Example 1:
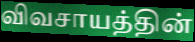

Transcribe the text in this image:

விவசாயத்தின்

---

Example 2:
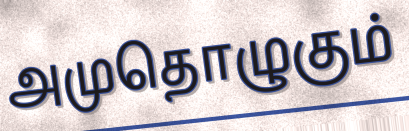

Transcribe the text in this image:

அமுதொழுகும்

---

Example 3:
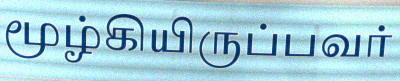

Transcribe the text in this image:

மூழ்கியிருப்பவர்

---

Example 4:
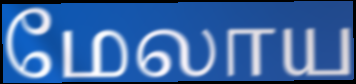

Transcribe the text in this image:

மேலாய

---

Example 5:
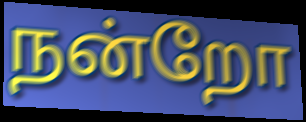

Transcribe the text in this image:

நன்றோ